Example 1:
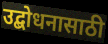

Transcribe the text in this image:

उद्बोधनासाठी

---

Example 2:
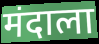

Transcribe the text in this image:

मंदाला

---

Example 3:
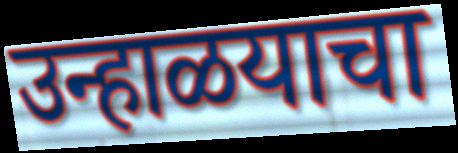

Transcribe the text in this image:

उन्हाळयाचा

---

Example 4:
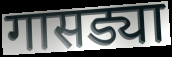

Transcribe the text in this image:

गासड्या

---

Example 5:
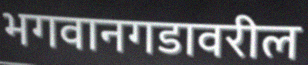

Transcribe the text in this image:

भगवानगडावरील